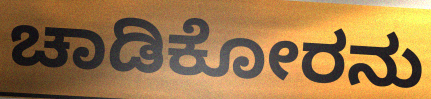
ಚಾಡಿಕೋರನು